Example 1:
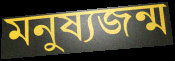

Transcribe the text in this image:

মনুষ্যজন্ম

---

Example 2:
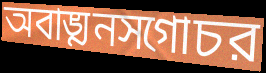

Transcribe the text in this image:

অবাঙ্মনসগোচর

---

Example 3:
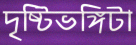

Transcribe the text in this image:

দৃষ্টিভঙ্গিটা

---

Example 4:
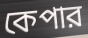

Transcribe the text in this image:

কেপার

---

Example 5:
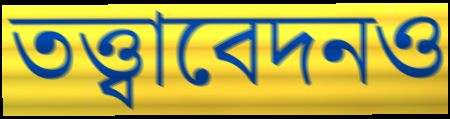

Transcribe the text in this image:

তত্ত্বাবেদনও